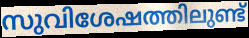
സുവിശേഷത്തിലുണ്ട്